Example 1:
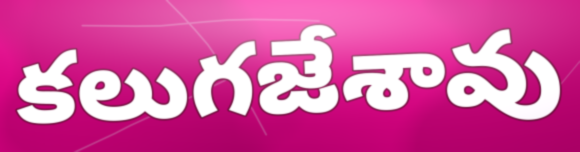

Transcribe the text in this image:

కలుగజేశావు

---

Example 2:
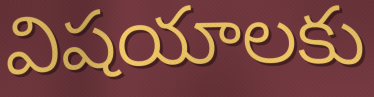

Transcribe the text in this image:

విషయాలకు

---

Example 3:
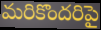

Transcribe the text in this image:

మరికొందరిపై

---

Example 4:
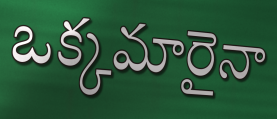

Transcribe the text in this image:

ఒక్కమారైనా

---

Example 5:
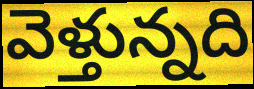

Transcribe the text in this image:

వెళ్తున్నది